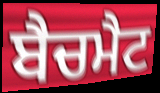
ਬੈਚਮੈਟ